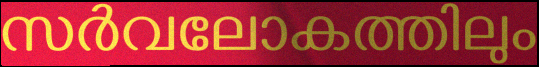
സർവലോകത്തിലും